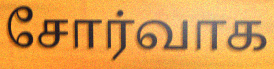
சோர்வாக